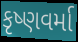
કૃષ્ણવર્મા